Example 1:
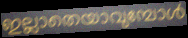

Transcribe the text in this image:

ഇല്ലാതെയാവുമ്പോൾ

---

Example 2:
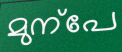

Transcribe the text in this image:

മുന്പേ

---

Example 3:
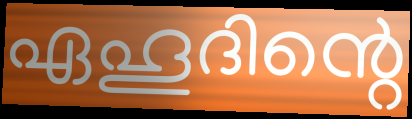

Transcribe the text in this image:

ഏഹൂദിന്റെ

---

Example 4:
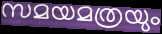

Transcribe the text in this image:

സമയമത്രയും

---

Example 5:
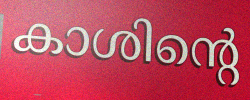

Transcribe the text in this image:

കാശിന്റെ